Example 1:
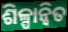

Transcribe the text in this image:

ଶିଳ୍ପାନ୍ବିତ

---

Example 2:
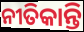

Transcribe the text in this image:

ନୀତିକାନ୍ତି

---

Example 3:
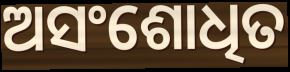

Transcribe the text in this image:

ଅସଂଶୋଧିତ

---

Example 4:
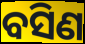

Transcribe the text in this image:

ବସିଣ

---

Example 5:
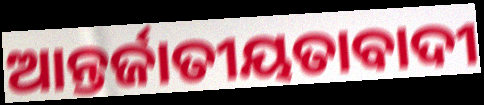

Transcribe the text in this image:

ଆନ୍ତର୍ଜାତୀୟତାବାଦୀ